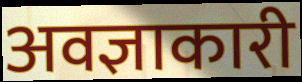
अवज्ञाकारी